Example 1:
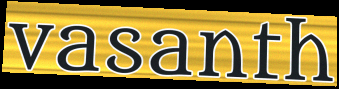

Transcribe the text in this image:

vasanth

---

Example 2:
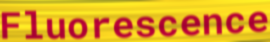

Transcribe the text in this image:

Fluorescence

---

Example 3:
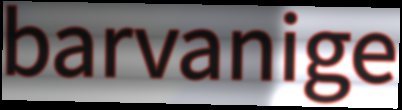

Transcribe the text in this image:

barvanige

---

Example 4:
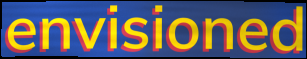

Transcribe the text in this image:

envisioned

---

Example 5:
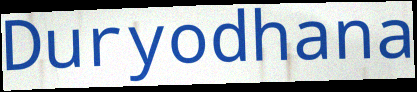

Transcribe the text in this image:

Duryodhana